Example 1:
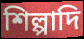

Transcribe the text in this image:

শিল্পাদি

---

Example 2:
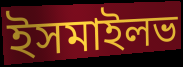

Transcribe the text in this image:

ইসমাইলভ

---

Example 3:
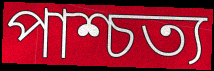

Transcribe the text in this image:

পাশ্চত্য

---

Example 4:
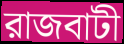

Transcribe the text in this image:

রাজবাটী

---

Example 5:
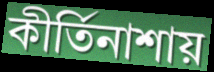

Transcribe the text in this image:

কীর্তিনাশায়